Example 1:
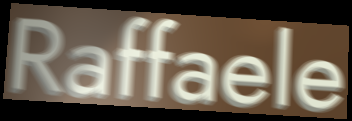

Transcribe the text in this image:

Raffaele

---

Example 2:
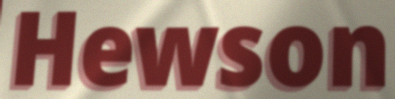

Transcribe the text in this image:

Hewson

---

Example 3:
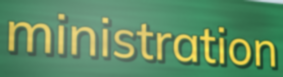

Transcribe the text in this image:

ministration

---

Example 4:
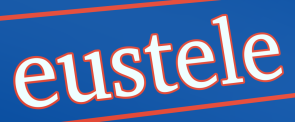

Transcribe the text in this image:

eustele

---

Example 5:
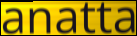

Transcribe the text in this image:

anatta